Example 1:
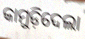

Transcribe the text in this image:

କାମୁଡ଼ିଦେଲା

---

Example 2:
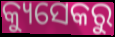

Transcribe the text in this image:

କ୍ୟୁସେକରୁ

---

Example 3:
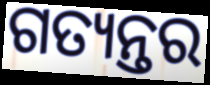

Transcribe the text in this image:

ଗତ୍ୟନ୍ତର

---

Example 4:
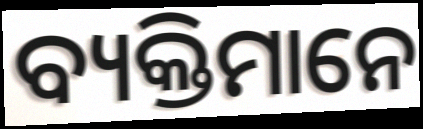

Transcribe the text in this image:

ବ୍ୟକ୍ତିମାନେ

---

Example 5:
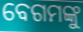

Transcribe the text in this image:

ବେଗମଙ୍କୁ